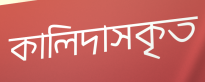
কালিদাসকৃত